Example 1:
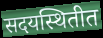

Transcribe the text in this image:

सदयस्थितीत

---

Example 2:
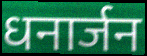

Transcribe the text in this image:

धनार्जन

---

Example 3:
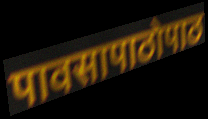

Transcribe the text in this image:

पावसापाठोपाठ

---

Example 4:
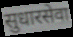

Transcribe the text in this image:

सुधारसेवा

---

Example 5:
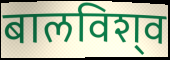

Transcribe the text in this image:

बालविश्व